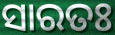
ସାରତଃ